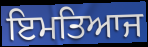
ਇਮਤਿਆਜ